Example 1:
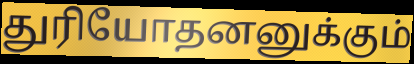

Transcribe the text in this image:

துரியோதனனுக்கும்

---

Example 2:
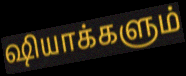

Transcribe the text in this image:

ஷியாக்களும்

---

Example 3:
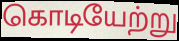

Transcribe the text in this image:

கொடியேற்று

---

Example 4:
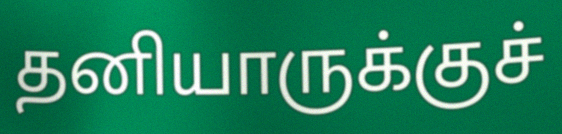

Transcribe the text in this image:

தனியாருக்குச்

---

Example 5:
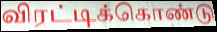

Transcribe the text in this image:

விரட்டிக்கொண்டு